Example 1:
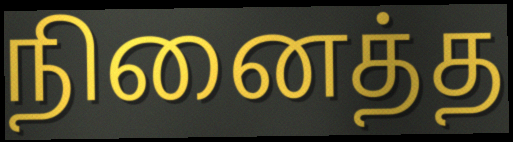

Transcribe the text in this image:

நினைத்த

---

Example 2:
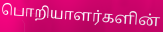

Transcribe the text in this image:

பொறியாளர்களின்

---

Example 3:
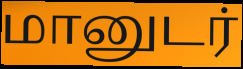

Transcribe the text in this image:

மானுடர்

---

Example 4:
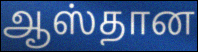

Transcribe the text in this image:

ஆஸ்தான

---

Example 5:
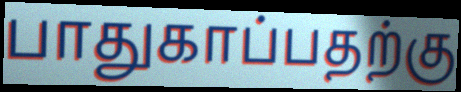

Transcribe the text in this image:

பாதுகாப்பதற்கு